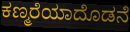
ಕಣ್ಮರೆಯಾದೊಡನೆ